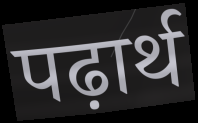
पढ़ार्थ